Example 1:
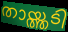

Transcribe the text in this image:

തായ്ത്തടി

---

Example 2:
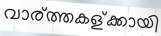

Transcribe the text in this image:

വാര്ത്തകള്ക്കായി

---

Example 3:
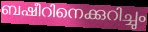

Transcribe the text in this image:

ബഷീറിനെക്കുറിച്ചും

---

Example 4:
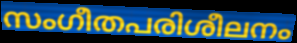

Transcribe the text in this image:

സംഗീതപരിശീലനം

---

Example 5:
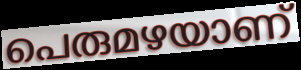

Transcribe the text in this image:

പെരുമഴയാണ്